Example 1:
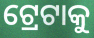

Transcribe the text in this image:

ଟ୍ରେଟାକୁ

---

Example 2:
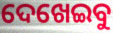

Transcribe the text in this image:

ଦେଖେଇବୁ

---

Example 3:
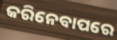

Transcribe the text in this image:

କରିନେବାପରେ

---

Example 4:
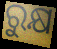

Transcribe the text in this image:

ରୁକ୍ଷ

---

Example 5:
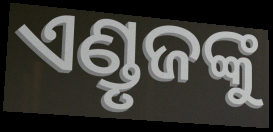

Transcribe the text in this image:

ଏଣ୍ଡୃଜଙ୍କୁ